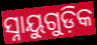
ସ୍ନାୟୁଗୁଡ଼ିକ